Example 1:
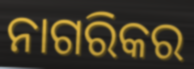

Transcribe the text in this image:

ନାଗରିକର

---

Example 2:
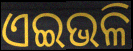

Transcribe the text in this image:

ଏଇଭଳି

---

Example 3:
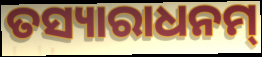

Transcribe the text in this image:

ତସ୍ୟାରାଧନମ୍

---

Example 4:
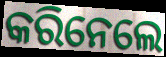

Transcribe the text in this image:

କରିନେଲେ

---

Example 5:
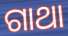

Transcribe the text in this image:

ଗାଥା